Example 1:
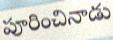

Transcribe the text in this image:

పూరించినాడు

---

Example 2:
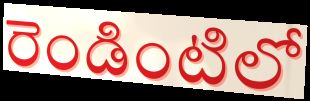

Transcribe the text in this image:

రెండింటిలో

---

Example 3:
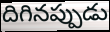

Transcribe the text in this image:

దిగినప్పుడు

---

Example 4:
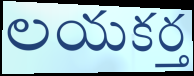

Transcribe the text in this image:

లయకర్త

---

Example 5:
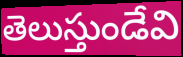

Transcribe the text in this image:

తెలుస్తుండేవి